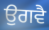
ਉਗਵੈ